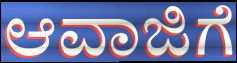
ಆವಾಜಿಗೆ